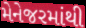
મેનેજરમાંથી